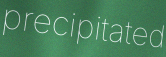
precipitated